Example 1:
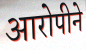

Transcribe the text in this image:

आरोपीने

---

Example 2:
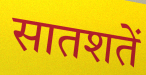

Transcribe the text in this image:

सातशतें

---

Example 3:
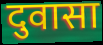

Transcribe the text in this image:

दुवासा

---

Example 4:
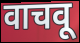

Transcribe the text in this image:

वाचवू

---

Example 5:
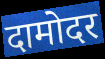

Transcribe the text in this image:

दामोदर